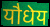
यौधेय